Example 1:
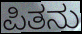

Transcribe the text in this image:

ಪಿತನು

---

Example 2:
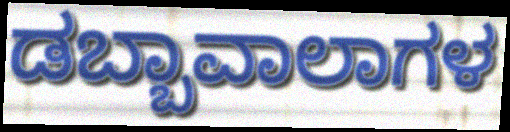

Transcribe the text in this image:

ಡಬ್ಬಾವಾಲಾಗಳ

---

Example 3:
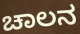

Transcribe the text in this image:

ಚಾಲನ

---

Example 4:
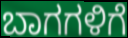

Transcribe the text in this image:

ಬಾಗಗಳಿಗೆ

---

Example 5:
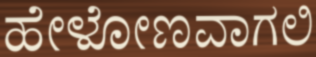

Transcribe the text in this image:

ಹೇಳೋಣವಾಗಲಿ